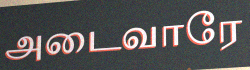
அடைவாரே